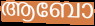
ആബോ